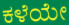
ಕಳೆಯೇ